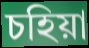
চহিয়া